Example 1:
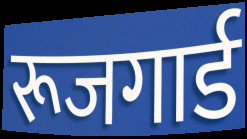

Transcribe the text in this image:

रूजगार्ड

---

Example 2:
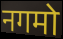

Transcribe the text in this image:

नगमो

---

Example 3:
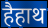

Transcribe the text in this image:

हैहाथ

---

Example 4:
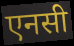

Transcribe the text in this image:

एनसी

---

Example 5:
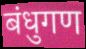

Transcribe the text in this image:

बंधुगण